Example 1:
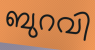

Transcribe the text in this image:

ബുറവി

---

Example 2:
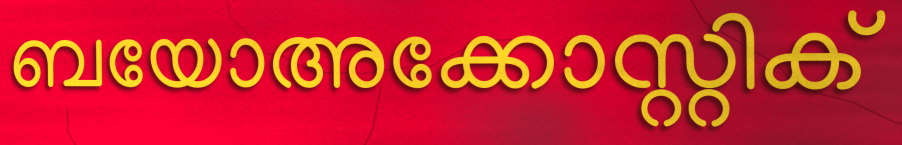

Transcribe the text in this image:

ബയോഅക്കോസ്റ്റിക്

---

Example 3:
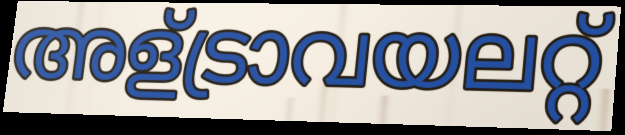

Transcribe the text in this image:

അള്ട്രാവയലറ്റ്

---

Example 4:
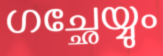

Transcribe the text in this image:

ഗച്ഛേയ്യും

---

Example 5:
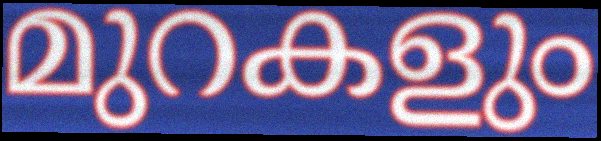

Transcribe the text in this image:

മുറകളും